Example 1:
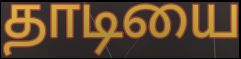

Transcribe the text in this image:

தாடியை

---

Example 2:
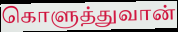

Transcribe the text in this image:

கொளுத்துவான்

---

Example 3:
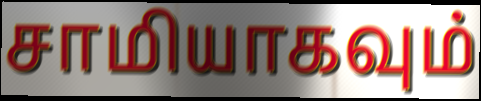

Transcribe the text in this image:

சாமியாகவும்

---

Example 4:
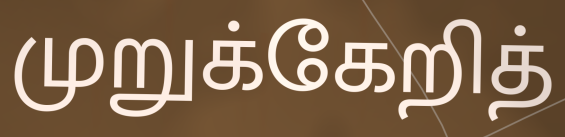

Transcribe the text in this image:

முறுக்கேறித்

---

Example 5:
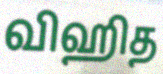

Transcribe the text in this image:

விஹித